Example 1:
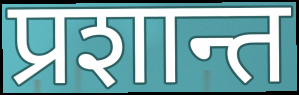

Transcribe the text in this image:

प्रशान्त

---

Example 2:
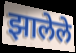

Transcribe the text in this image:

झालेले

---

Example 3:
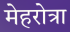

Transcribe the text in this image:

मेहरोत्रा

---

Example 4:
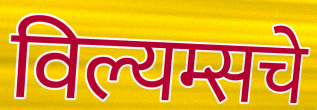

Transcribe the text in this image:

विल्यम्सचे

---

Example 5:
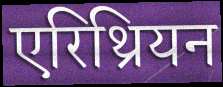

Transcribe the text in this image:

एरिथ्रियन